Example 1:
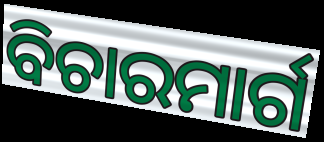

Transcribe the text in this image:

ବିଚାରମାର୍ଗ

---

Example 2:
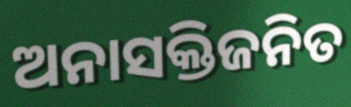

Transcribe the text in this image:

ଅନାସକ୍ତିଜନିତ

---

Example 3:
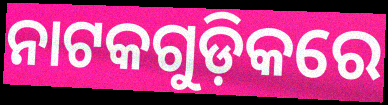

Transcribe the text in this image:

ନାଟକଗୁଡ଼ିକରେ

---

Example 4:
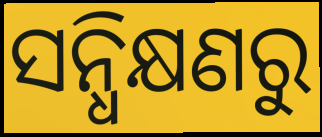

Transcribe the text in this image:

ସନ୍ଧିକ୍ଷଣରୁ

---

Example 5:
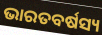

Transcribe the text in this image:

ଭାରତବର୍ଷସ୍ୟ